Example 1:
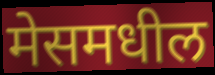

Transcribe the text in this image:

मेसमधील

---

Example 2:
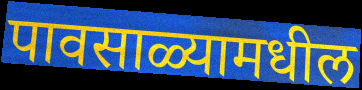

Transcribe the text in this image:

पावसाळ्यामधील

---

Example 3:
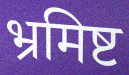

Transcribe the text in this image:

भ्रमिष्ट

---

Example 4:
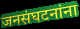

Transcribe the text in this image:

जनसंघटनांना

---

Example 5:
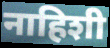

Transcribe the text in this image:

नाहिशी